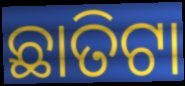
ଛାତିଟା